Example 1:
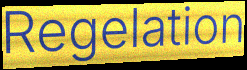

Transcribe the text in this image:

Regelation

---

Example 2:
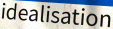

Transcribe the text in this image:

idealisation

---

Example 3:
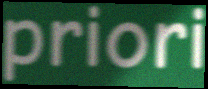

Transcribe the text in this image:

priori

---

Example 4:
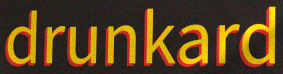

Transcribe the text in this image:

drunkard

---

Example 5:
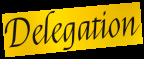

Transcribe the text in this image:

Delegation